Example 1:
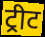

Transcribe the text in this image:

ट्रीट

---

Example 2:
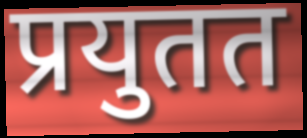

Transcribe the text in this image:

प्रयुतत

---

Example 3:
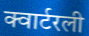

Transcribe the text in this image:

क्वार्टरली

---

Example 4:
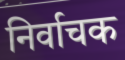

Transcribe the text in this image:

निर्वाचक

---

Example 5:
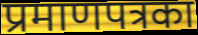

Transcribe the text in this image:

प्रमाणपत्रका